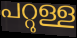
പറ്റുള്ള